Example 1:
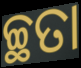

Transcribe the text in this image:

ଚ୍ଛତା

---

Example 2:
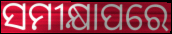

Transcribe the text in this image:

ସମୀକ୍ଷାପରେ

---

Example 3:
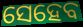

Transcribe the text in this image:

ସେହେବ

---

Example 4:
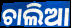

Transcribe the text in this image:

ଚାଲିଆ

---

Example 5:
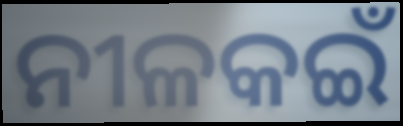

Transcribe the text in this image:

ନୀଳକଇଁ